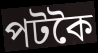
পটকৈ